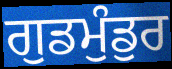
ਗੁਡਮੁੰਡੁਰ